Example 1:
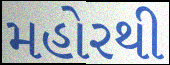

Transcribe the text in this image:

મહોરથી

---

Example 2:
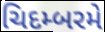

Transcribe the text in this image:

ચિદમ્બરમે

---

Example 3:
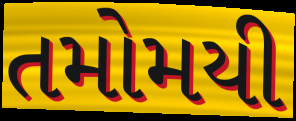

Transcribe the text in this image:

તમોમયી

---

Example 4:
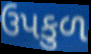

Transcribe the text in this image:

ઉપકુળ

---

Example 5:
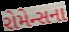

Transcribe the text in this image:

રોમેન્સના